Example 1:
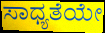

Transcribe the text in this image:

ಸಾಧ್ಯತೆಯೇ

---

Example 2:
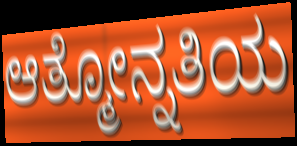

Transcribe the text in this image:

ಆತ್ಮೋನ್ನತಿಯ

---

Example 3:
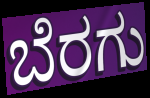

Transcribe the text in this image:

ಬೆರಗು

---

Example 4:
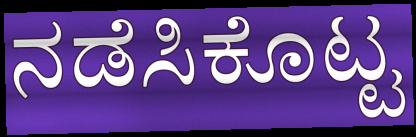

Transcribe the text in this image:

ನಡೆಸಿಕೊಟ್ಟ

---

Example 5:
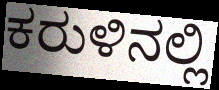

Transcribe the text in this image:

ಕರುಳಿನಲ್ಲಿ